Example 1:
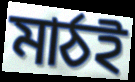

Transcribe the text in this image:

মাঠই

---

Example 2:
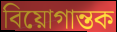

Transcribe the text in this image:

বিয়োগান্তক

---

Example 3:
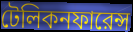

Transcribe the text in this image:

টেলিকনফারেন্স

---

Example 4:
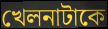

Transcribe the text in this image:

খেলনাটাকে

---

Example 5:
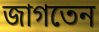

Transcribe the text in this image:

জাগতেন